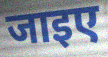
जाइए